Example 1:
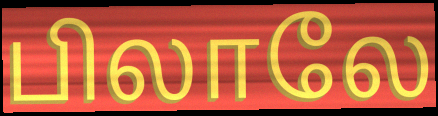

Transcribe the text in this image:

பிலாலே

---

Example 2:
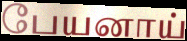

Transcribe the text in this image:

பேயனாய்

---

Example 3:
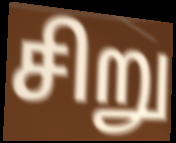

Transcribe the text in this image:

சிறு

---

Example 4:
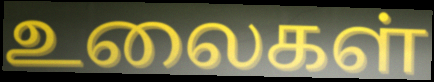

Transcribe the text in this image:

உலைகள்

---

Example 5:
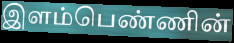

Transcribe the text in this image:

இளம்பெண்ணின்